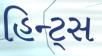
હિન્ટ્સ